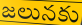
జలునకు